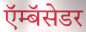
ऍम्बॅसेडर